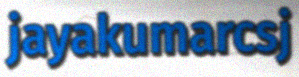
jayakumarcsj